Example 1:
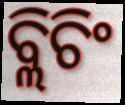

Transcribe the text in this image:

ବ୍ଲିଚିଂ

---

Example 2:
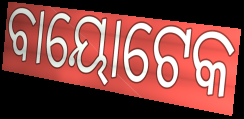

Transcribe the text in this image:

ବାୟୋଟେକ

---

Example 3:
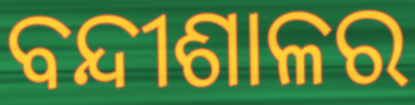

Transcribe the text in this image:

ବନ୍ଦୀଶାଳର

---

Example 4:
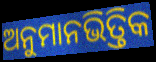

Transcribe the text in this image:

ଅନୁମାନଭିତ୍ତିକ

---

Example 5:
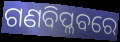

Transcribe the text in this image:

ଗଣବିପ୍ଳବରେ